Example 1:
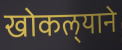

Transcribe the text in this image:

खोकल्याने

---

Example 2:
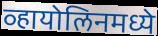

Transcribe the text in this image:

व्हायोलिनमध्ये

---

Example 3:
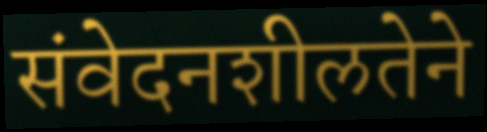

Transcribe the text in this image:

संवेदनशीलतेने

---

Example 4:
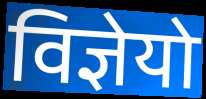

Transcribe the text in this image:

विज्ञेयो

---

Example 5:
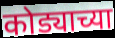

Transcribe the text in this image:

कोड्याच्या